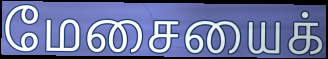
மேசையைக்